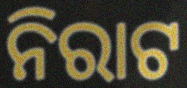
ନିରାଟ